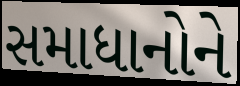
સમાધાનોને